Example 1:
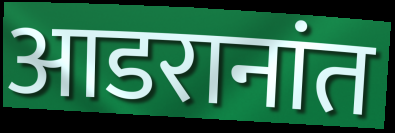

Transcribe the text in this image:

आडरानांत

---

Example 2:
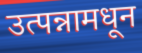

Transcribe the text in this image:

उत्पन्नामधून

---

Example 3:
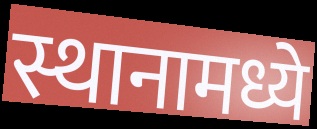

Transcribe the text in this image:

स्थानामध्ये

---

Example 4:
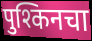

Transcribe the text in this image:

पुश्किनचा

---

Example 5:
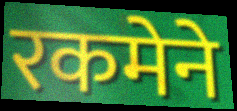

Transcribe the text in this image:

रकमेने